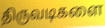
திருவடிகளை